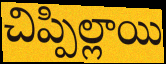
చిప్పిల్లాయి